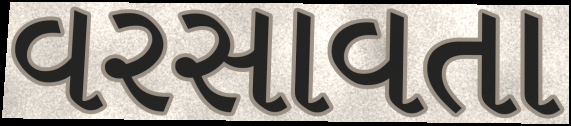
વરસાવતા